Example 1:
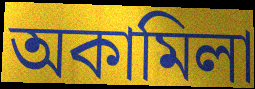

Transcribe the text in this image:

অকামিলা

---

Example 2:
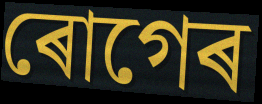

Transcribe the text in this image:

ৰোগেৰ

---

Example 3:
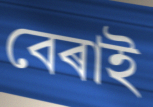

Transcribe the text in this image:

বেৰাই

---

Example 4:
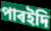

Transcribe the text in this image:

পাৰইদি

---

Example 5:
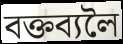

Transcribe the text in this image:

বক্তব্যলৈ